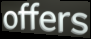
offers